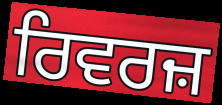
ਰਿਵਰਜ਼